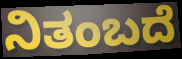
ನಿತಂಬದೆ